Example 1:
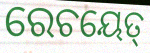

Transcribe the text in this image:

ରେଚୟେତ୍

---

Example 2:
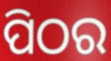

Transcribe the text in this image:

ପିଠର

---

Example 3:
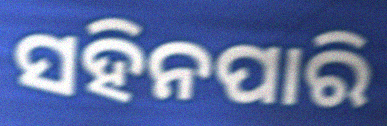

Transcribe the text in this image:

ସହିନପାରି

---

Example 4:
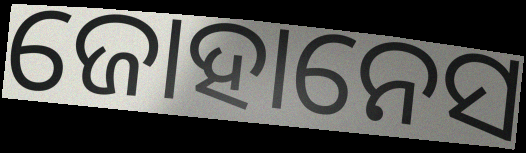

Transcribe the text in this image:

ଜୋହାନେସ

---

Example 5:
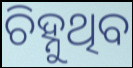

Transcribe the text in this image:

ଚିହ୍ନୁଥିବ